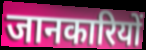
जानकारियों